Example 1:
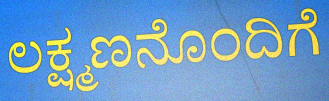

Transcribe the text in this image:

ಲಕ್ಷ್ಮಣನೊಂದಿಗೆ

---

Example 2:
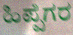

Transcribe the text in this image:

ಹಿಪ್ಪೆಗರ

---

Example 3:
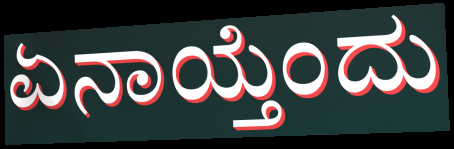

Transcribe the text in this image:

ಏನಾಯ್ತೆಂದು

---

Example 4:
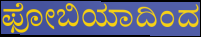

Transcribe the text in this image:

ಫೋಬಿಯಾದಿಂದ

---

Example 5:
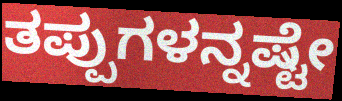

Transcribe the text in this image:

ತಪ್ಪುಗಳನ್ನಷ್ಟೇ